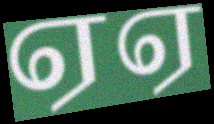
ஏஏ